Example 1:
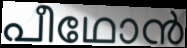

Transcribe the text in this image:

പീഥോൻ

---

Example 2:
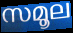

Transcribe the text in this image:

സമൂല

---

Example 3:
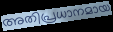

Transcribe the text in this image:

അതിപ്രധാനമായ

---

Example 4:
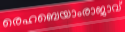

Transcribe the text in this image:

രെഹബെയാംരാജാവ്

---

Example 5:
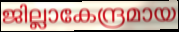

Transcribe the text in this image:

ജില്ലാകേന്ദ്രമായ